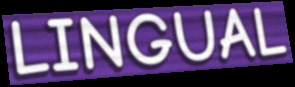
LINGUAL